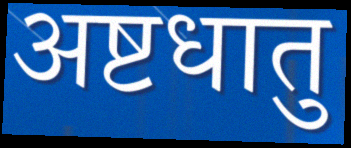
अष्टधातु